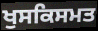
ਖੁਸਕਿਸਮਤ